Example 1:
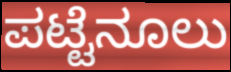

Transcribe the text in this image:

ಪಟ್ಟೆನೂಲು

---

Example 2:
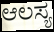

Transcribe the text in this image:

ಆಲಸ್ಯ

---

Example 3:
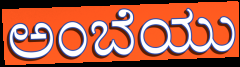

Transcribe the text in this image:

ಅಂಬೆಯು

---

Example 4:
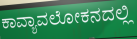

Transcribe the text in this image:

ಕಾವ್ಯಾವಲೋಕನದಲ್ಲಿ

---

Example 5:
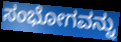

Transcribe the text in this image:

ಸಂಭೋಗವನ್ನು